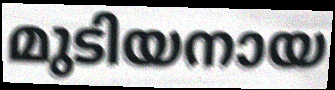
മുടിയനായ